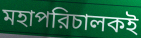
মহাপরিচালকই